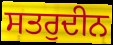
ਸਤਰੁਦੀਨ